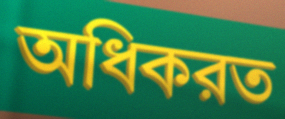
অধিকরত